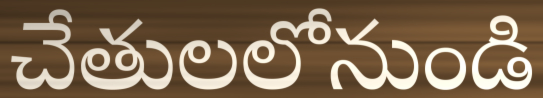
చేతులలోనుండి